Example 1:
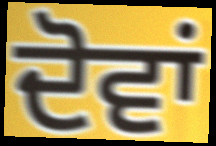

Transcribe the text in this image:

ਦੋਵਾਂ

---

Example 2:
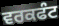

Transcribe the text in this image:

ਵਰਕਫੰਟ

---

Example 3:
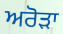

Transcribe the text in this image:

ਅਰੋੜਾ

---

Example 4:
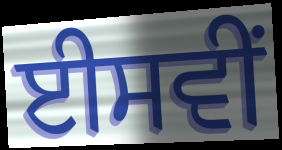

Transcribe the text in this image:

ਈਸਵੀਂ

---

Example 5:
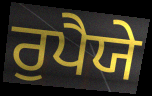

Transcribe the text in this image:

ਰੁਪੈਯੇ